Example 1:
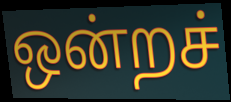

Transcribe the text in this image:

ஒன்றச்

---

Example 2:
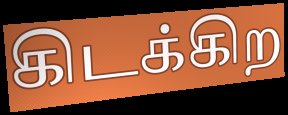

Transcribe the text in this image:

கிடக்கிற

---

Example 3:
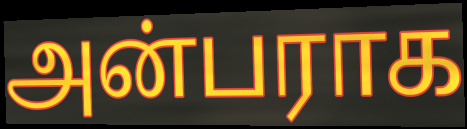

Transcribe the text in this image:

அன்பராக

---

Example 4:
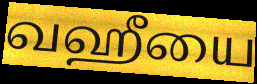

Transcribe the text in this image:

வஹீயை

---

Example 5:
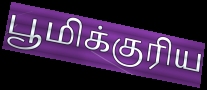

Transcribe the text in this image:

பூமிக்குரிய